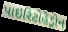
પાઇરિટોહેડ્રોન